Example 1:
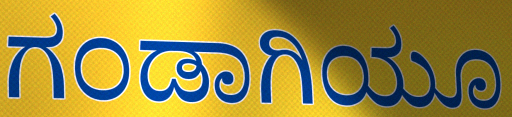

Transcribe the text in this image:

ಗಂಡಾಗಿಯೂ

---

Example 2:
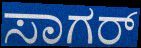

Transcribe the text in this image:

ಸಾಗರ್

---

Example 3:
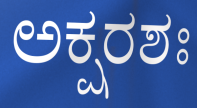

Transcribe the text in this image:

ಅಕ್ಷರಶಃ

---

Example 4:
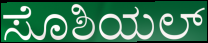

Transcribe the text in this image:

ಸೊಶಿಯಲ್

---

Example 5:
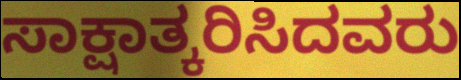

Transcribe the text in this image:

ಸಾಕ್ಷಾತ್ಕರಿಸಿದವರು